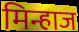
मिन्हाज